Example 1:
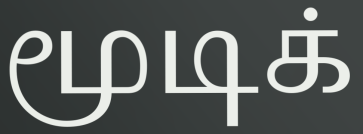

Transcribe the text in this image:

மூடிக்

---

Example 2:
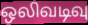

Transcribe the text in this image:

ஒலிவடிவு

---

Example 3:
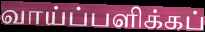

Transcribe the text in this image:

வாய்ப்பளிக்கப்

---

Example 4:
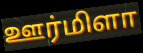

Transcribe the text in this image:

ஊர்மிளா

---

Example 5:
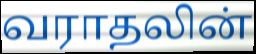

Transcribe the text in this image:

வராதலின்